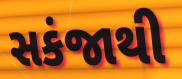
સકંજાથી